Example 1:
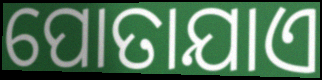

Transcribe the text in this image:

ପୋତାଯାଏ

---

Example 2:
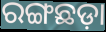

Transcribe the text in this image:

ରଙ୍ଗଛଡ଼ା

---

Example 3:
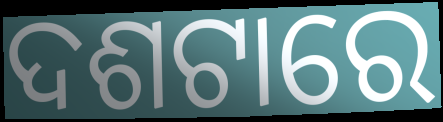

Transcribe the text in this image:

ଦଶଟାରେ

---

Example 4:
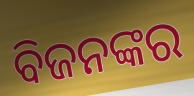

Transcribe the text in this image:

ବିଜନଙ୍କର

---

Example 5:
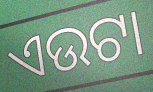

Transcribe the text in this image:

ଏଉଟା